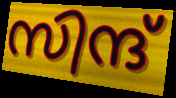
സിന്ദ്